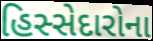
હિસ્સેદારોના